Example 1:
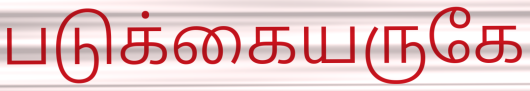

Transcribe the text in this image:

படுக்கையருகே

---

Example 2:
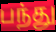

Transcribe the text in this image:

பந்து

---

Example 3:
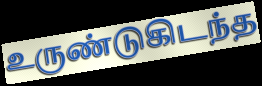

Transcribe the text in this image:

உருண்டுகிடந்த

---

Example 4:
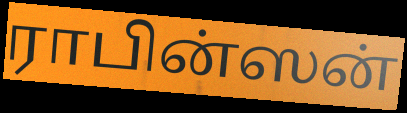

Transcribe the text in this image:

ராபின்ஸன்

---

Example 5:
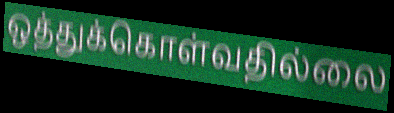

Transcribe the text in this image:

ஒத்துக்கொள்வதில்லை